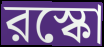
রস্কো